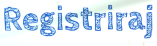
Registriraj